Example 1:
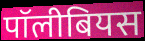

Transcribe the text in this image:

पॉलीबियस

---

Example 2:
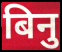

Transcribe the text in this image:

बिनु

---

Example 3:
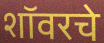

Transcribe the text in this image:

शॉवरचे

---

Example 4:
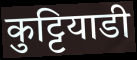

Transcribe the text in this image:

कुट्टियाडी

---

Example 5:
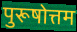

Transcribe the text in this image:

पुरूषोत्तम